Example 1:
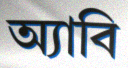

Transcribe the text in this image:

অ্যাবি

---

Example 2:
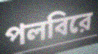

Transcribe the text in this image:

পলবিরে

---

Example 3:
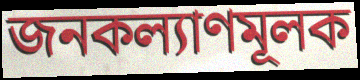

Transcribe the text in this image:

জনকল্যাণমূলক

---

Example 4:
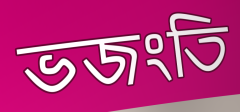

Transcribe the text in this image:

ভজংতি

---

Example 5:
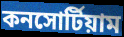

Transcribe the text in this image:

কনসোর্টিয়াম